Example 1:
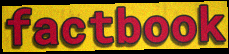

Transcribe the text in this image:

factbook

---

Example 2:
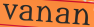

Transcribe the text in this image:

vanan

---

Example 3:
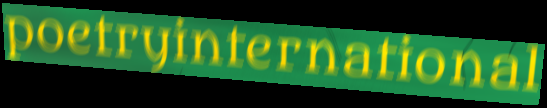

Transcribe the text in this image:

poetryinternational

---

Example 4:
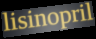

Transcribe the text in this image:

lisinopril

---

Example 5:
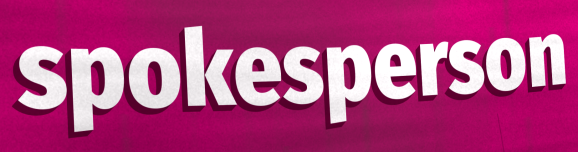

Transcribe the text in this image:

spokesperson